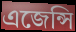
এজেন্সি